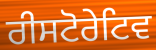
ਰੀਸਟੋਰੇਟਿਵ